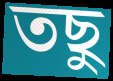
তছু